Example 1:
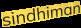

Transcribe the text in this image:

sindhiman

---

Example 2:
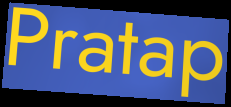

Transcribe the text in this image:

Pratap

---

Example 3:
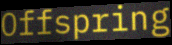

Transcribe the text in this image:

Offspring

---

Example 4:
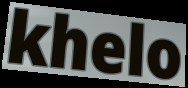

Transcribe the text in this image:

khelo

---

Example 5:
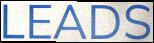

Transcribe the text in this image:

LEADS